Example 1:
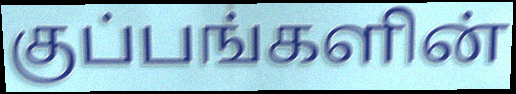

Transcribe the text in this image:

குப்பங்களின்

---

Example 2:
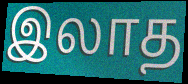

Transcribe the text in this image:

இலாத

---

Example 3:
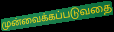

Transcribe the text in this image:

முன்வைக்கப்படுவதை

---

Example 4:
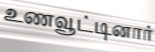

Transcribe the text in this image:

உணவூட்டினார்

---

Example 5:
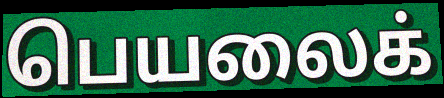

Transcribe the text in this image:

பெயலைக்